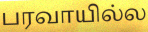
பரவாயில்ல